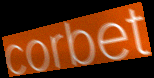
corbet